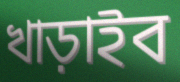
খাড়াইব